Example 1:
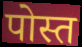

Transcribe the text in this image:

पोस्त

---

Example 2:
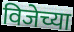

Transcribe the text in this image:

विजेच्या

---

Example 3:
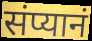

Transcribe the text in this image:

संप्यानं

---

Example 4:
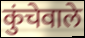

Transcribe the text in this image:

कुंचेवाले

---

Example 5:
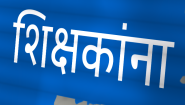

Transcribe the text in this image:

शिक्षकांना